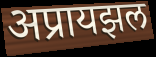
अप्रायझल